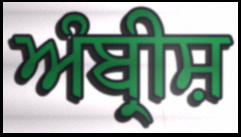
ਅੰਬ੍ਰੀਸ਼